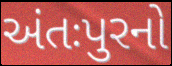
અંતઃપુરનો